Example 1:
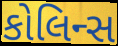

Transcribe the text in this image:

કોલિન્સ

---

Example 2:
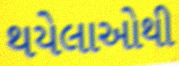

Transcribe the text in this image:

થયેલાઓથી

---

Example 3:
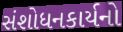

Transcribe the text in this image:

સંશોધનકાર્યનો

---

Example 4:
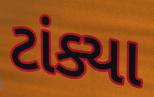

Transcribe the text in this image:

ટાંક્યા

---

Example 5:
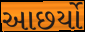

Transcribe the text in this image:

આછર્યો